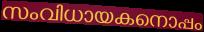
സംവിധായകനൊപ്പം